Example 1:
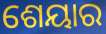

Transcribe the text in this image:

ଶେୟାର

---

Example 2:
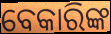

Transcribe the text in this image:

ବେକାରିଙ୍କ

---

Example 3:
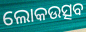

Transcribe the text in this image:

ଲୋକଉତ୍ସବ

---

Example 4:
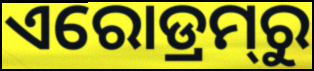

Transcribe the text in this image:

ଏରୋଡ୍ରମ୍‍ରୁ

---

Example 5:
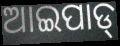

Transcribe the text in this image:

ଆଇପାଡ୍